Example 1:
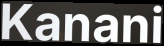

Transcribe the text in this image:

Kanani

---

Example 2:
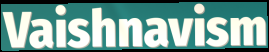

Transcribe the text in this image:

Vaishnavism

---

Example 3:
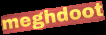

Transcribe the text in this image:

meghdoot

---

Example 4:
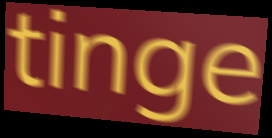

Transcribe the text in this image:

tinge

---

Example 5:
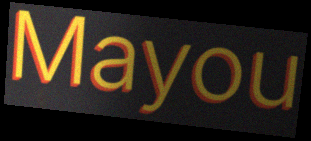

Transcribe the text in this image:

Mayou